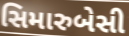
સિમારુબેસી